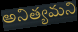
అనిత్యమని